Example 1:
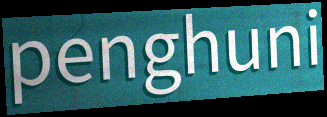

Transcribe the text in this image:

penghuni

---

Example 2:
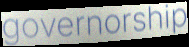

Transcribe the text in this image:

governorship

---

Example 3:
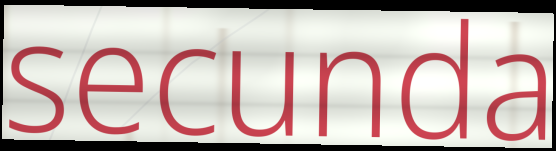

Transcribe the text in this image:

secunda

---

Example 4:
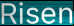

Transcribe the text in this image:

Risen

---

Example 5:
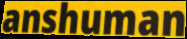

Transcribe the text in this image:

anshuman